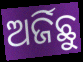
ଅର୍ଜିଛୁ